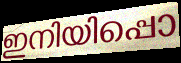
ഇനിയിപ്പൊ